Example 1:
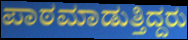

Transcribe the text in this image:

ಪಾಠಮಾಡುತ್ತಿದ್ದರು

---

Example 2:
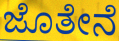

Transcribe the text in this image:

ಜೊತೇನೆ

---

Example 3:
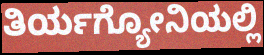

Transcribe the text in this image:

ತಿರ್ಯಗ್ಯೋನಿಯಲ್ಲಿ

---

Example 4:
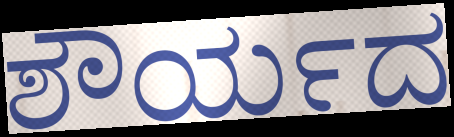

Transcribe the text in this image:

ಶೌರ್ಯದ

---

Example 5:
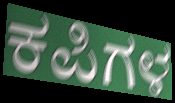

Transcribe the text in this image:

ಕಪಿಗಳ